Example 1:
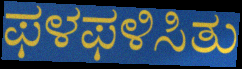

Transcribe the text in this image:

ಫಳಫಳಿಸಿತು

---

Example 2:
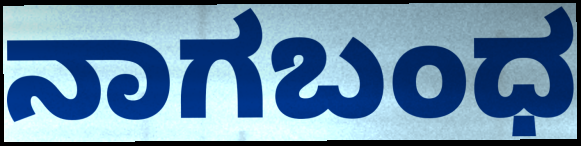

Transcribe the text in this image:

ನಾಗಬಂಧ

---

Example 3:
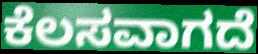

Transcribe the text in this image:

ಕೆಲಸವಾಗದೆ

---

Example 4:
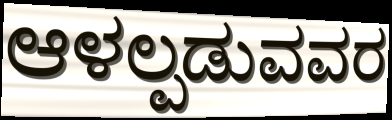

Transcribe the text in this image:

ಆಳಲ್ಪಡುವವರ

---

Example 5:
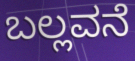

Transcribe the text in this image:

ಬಲ್ಲವನೆ